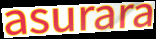
asurara